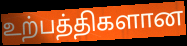
உற்பத்திகளான